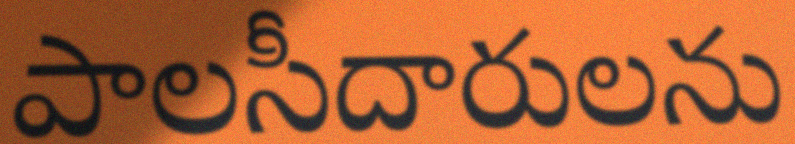
పాలసీదారులను